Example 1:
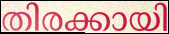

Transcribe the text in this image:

തിരക്കായി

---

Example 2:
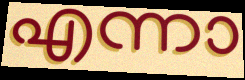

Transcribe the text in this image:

എന്നാ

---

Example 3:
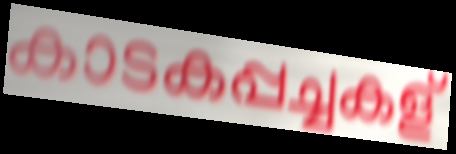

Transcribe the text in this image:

കാടകപ്പച്ചകള്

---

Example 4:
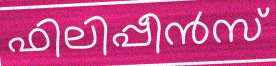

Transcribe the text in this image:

ഫിലിപ്പീൻസ്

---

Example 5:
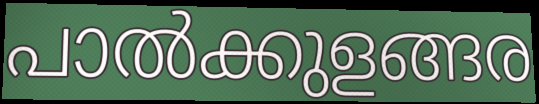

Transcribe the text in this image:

പാൽക്കുളങ്ങര